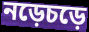
নড়েচড়ে